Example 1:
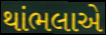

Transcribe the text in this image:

થાંભલાએ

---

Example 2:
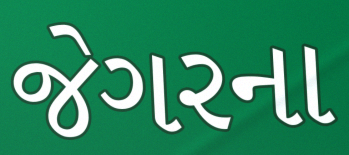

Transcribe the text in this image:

જેગરના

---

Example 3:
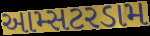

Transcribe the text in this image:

આમ્સટરડામ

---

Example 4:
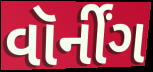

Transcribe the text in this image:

વૉર્નીંગ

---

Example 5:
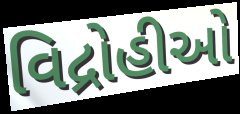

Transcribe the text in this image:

વિદ્રોહીઓ